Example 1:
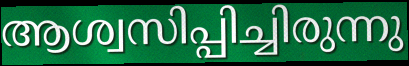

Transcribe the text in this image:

ആശ്വസിപ്പിച്ചിരുന്നു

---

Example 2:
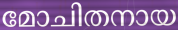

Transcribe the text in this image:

മോചിതനായ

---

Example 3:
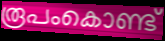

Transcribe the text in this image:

രൂപംകൊണ്ട്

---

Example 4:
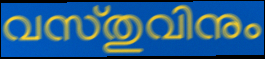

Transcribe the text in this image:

വസ്തുവിനും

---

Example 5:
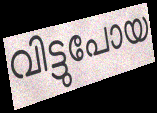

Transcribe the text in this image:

വിട്ടുപോയ